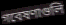
গবেষণাগুলি